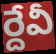
ర్దేవీ